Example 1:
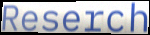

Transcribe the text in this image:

Reserch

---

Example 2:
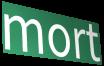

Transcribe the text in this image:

mort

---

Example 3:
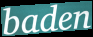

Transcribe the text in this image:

baden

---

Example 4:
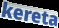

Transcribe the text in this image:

kereta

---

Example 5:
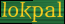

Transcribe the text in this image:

lokpal